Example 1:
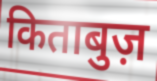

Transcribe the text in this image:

किताबुज़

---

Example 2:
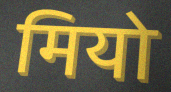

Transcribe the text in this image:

मियो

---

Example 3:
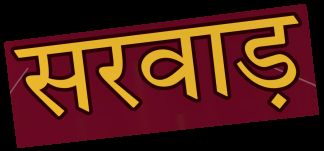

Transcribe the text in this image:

सरवाड़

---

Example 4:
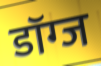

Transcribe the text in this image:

डॉग्ज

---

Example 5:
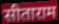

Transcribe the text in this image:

सीताराम